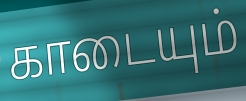
காடையும்